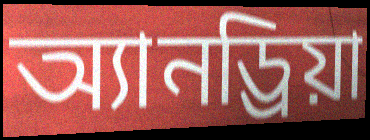
অ্যানড্রিয়া